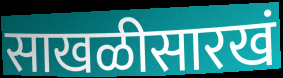
साखळीसारखं